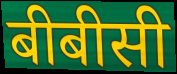
बीबीसी